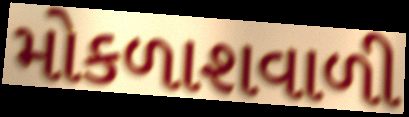
મોકળાશવાળી